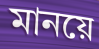
মানয়ে